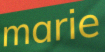
marie